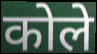
कोले